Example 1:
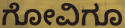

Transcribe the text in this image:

ಗೋವಿಗೂ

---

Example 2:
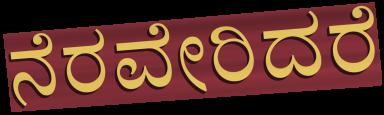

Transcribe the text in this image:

ನೆರವೇರಿದರೆ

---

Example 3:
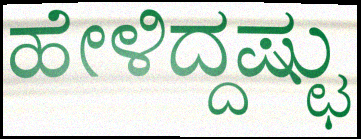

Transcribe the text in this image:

ಹೇಳಿದ್ದಷ್ಟು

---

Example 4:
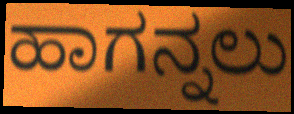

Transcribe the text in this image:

ಹಾಗನ್ನಲು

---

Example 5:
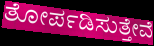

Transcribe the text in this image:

ತೋರ್ಪಡಿಸುತ್ತೇವೆ